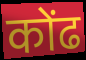
कोंढ